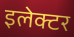
इलेक्टर